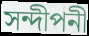
সন্দীপনী